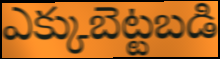
ఎక్కుబెట్టబడి